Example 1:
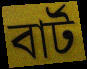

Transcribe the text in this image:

বার্ট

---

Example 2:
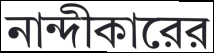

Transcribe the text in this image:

নান্দীকারের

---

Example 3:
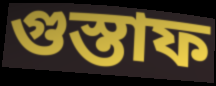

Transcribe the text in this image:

গুস্তাফ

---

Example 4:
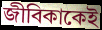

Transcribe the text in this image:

জীবিকাকেই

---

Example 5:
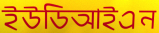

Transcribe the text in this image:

ইউডিআইএন